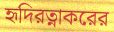
হৃদিরত্নাকরের